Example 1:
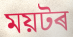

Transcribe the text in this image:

ময়টৰ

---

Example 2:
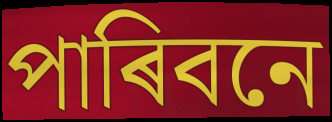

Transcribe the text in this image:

পাৰিবনে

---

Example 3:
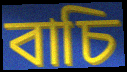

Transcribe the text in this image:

বাচি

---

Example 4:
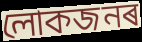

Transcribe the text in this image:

লোকজনৰ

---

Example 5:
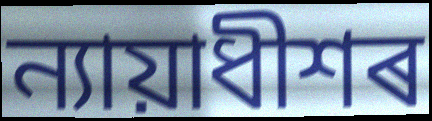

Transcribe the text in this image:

ন্যায়াধীশৰ